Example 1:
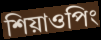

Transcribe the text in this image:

শিয়াওপিং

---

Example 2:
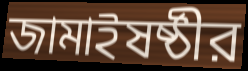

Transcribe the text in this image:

জামাইষষ্ঠীর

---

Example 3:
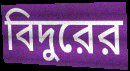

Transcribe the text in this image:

বিদুরের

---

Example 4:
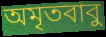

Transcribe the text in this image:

অমৃতবাবু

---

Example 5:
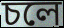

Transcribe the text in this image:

চলে